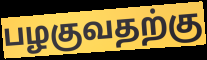
பழகுவதற்கு